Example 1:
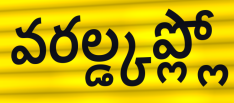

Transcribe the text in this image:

వరల్డ్కప్ల్లో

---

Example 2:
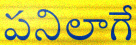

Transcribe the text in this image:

పనిలాగే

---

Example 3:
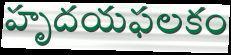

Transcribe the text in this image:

హృదయఫలకం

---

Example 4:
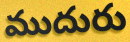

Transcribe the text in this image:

ముదురు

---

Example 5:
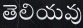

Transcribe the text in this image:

తెలియవు